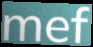
mef